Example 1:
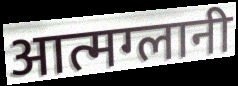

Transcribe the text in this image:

आत्मग्लानी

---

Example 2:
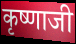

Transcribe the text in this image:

कृष्णाजी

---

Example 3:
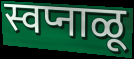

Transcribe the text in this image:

स्वप्नाळू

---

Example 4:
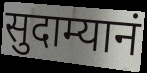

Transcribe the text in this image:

सुदाम्यानं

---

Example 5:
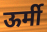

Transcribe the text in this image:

ऊर्मी